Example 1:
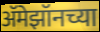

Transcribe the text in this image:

ॲमेझॉनच्या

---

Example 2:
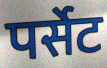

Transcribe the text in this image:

पर्सेट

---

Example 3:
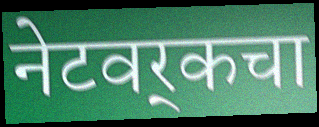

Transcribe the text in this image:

नेटवर्कचा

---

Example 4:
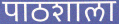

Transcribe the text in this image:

पाठशाला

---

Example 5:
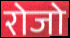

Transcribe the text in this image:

रोजो